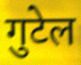
गुटेल